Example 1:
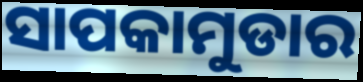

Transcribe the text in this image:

ସାପକାମୁଡାର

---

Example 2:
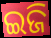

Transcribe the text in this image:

ଇଜି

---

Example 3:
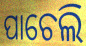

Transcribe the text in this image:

ପାଚେଲି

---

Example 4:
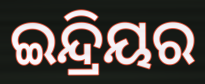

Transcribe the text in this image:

ଇନ୍ଦ୍ରିୟର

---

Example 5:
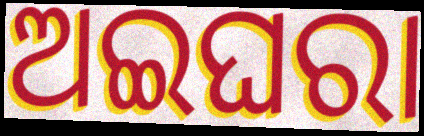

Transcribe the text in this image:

ଅଇଘରା